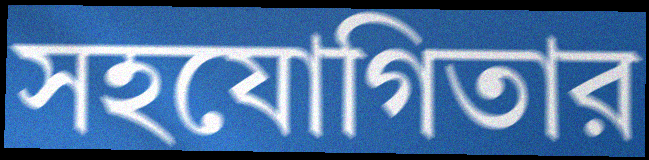
সহযোগিতার